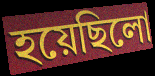
হয়েছিলো